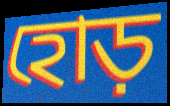
হোড়